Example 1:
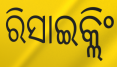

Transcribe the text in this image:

ରିସାଇକ୍ଲିଂ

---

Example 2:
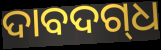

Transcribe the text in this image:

ଦାବଦଗ୍‍ଧ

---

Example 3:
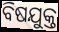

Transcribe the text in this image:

ବିଷଯୁକ୍ତ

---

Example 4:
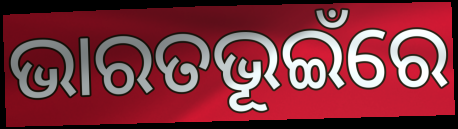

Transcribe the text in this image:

ଭାରତଭୂଇଁରେ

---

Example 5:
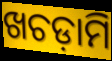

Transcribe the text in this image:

ଖଚଡ଼ାମି